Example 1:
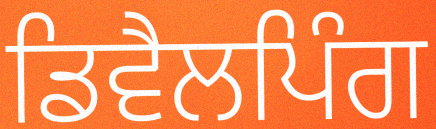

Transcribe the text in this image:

ਡਿਵੈਲਪਿੰਗ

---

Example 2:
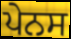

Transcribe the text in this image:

ਪੇਨਸ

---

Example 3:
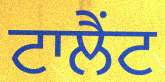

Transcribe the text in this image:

ਟਾਲੈਂਟ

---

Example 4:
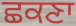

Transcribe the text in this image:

ਛਕਣਾ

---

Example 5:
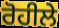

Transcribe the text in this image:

ਰੋਹੀਲੇ